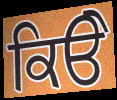
ਕਿੳੇ